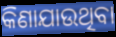
କିଣାଯାଉଥିବା